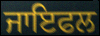
ਜਾਇਫਲ